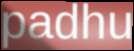
padhu